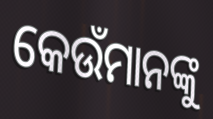
କେଉଁମାନଙ୍କୁ